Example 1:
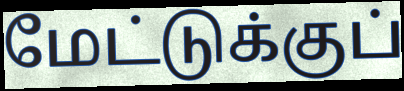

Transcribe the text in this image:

மேட்டுக்குப்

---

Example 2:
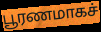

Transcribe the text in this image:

பூரணமாகச்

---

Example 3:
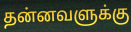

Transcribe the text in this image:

தன்னவளுக்கு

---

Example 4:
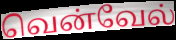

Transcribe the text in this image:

வென்வேல்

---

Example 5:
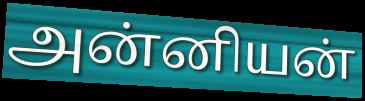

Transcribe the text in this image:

அன்னியன்